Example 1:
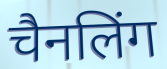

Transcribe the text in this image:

चैनलिंग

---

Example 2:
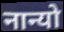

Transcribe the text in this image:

नान्यो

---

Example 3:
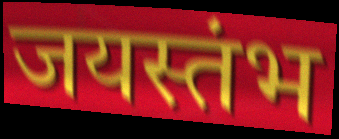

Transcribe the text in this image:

जयस्तंभ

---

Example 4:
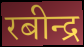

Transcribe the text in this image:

रबीन्द्र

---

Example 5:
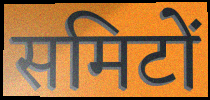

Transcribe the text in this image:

समिटों